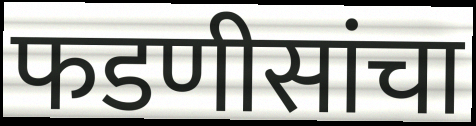
फडणीसांचा